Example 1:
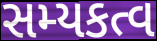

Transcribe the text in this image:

સમ્યકત્વ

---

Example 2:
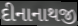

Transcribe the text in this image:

દીનાનાથજી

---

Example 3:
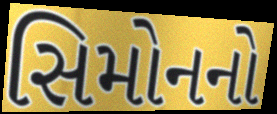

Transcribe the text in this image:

સિમોનનો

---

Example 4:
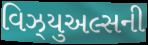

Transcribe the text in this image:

વિઝ્યુઅલ્સની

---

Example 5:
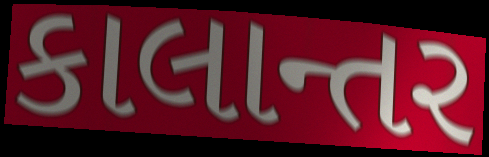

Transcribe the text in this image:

કાલાન્તર